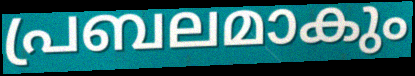
പ്രബലമാകും